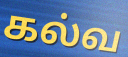
கல்வ